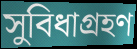
সুবিধাগ্রহণ